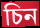
চিন